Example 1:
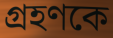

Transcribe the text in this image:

গ্ৰহণকে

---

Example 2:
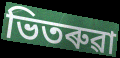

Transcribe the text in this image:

ভিতৰুৱা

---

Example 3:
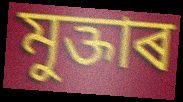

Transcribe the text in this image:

মুক্তাৰ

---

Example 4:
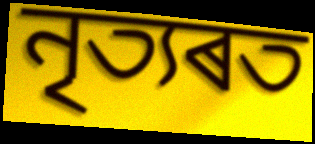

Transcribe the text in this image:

নৃত্যৰত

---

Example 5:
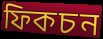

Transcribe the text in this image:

ফিকচন